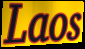
Laos